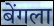
बेंगला